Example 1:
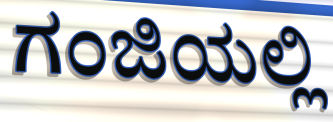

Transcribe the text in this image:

ಗಂಜಿಯಲ್ಲಿ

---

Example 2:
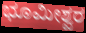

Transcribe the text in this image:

ಭೂಮೀಶ್ವರ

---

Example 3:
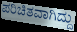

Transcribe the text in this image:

ಪರಿಚಿತವಾಗಿದ್ದು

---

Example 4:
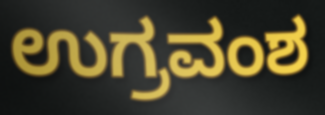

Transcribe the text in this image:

ಉಗ್ರವಂಶ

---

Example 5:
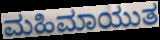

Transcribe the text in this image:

ಮಹಿಮಾಯುತ